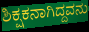
ಶಿಕ್ಷಕನಾಗಿದ್ದವನು